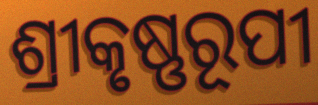
ଶ୍ରୀକୃଷ୍ଣରୂପୀ